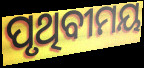
ପୃଥିବୀମୟ